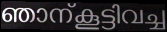
ഞാന്കൂട്ടിവച്ച